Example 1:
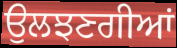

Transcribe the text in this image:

ਉਲਝਣਗੀਆਂ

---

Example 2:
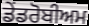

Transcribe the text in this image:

ਡੇਂਡਰੋਬੀਅਮ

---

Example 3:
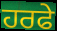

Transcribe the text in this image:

ਹਰਫੇ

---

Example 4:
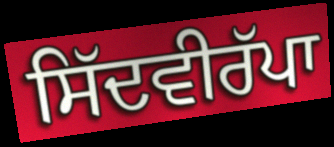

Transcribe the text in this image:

ਸਿੱਦਵੀਰੱਪਾ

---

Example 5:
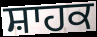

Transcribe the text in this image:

ਸ਼ਾਹਕ